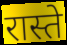
रास्ते